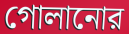
গোলানোর